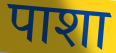
पाशा